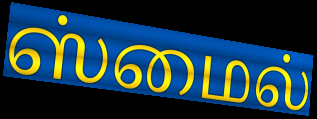
ஸ்மைல்